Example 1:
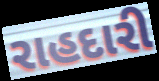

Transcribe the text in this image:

રાહદારી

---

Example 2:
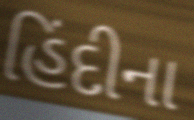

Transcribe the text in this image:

હિંદીના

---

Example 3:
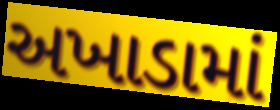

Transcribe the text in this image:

અખાડામાં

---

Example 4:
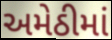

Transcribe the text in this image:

અમેઠીમાં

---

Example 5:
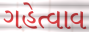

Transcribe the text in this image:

ગહેત્વાવ